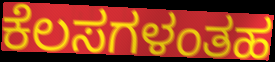
ಕೆಲಸಗಳಂತಹ